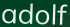
adolf